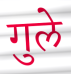
गुले